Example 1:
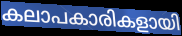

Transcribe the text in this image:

കലാപകാരികളായി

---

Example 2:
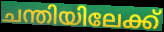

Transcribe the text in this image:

ചന്തിയിലേക്ക്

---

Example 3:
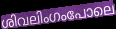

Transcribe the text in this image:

ശിവലിംഗംപോലെ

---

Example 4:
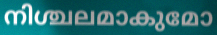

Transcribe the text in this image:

നിശ്ചലമാകുമോ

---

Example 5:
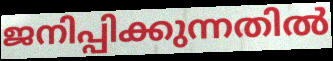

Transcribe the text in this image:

ജനിപ്പിക്കുന്നതിൽ